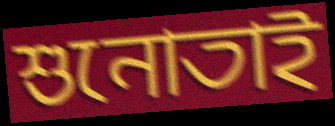
শুনোতাই